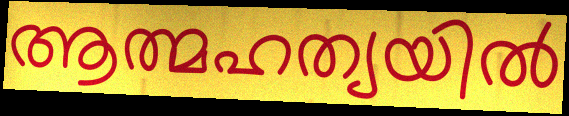
ആത്മഹത്യയിൽ